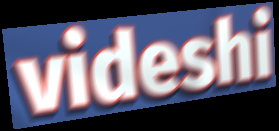
videshi